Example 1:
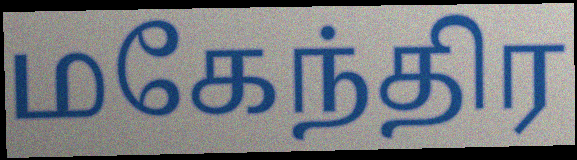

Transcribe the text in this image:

மகேந்திர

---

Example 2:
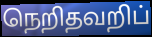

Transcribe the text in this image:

நெறிதவறிப்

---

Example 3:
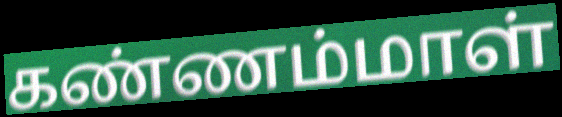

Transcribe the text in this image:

கண்ணம்மாள்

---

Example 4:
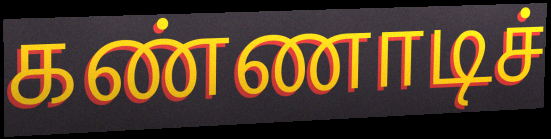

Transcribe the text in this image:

கண்ணாடிச்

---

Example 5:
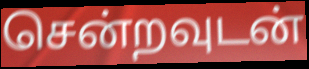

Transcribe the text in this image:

சென்றவுடன்